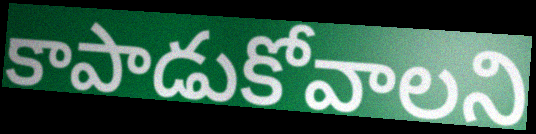
కాపాడుకోవాలని